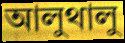
আলুথালু